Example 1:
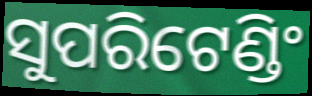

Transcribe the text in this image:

ସୁପରିଟେଣ୍ଡିଂ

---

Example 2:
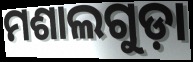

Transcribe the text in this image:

ମଶାଲଗୁଡ଼ା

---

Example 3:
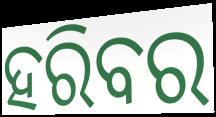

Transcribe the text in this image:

ହରିବର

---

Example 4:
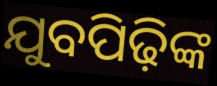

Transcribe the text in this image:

ଯୁବପିଢ଼ିଙ୍କ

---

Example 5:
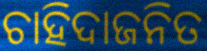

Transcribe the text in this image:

ଚାହିଦାଜନିତ